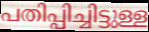
പതിപ്പിച്ചിട്ടുള്ള